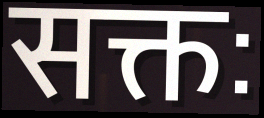
सक्तः